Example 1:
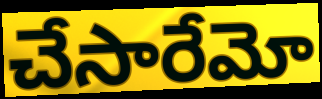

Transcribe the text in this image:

చేసారేమో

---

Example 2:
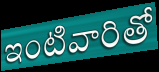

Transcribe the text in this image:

ఇంటివారితో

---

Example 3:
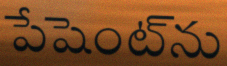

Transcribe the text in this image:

పేషెంట్‌ను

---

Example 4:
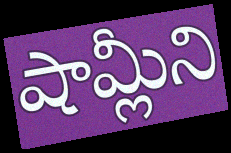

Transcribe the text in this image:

షామ్లీని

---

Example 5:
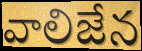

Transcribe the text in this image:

వాలిజేన